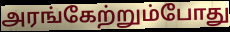
அரங்கேற்றும்போது